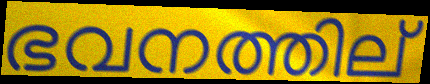
ഭവനത്തില്